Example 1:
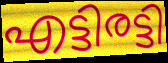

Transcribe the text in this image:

എട്ടിരട്ടി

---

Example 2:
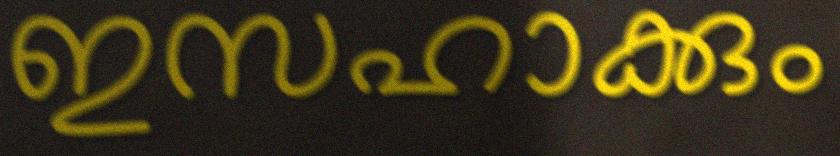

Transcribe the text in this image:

ഇസഹാക്കും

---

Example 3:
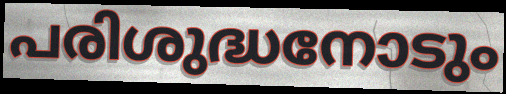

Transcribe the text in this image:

പരിശുദ്ധനോടും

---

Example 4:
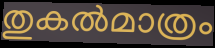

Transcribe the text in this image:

തുകൽമാത്രം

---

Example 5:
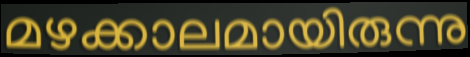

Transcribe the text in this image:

മഴക്കാലമായിരുന്നു